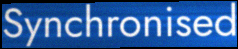
Synchronised